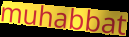
muhabbat